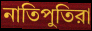
নাতিপুতিরা